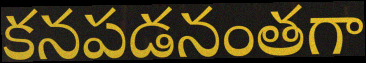
కనపడనంతగా